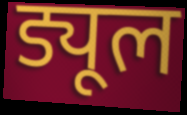
ड्यूल